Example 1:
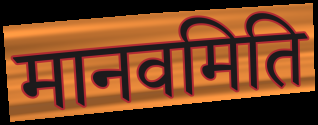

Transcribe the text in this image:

मानवमिति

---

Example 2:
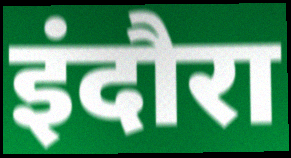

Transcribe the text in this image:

इंदौरा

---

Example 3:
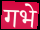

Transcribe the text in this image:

गभे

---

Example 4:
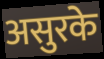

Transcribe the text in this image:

असुरके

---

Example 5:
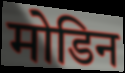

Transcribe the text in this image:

मोडिन